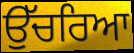
ਉੱਚਰਿਆ